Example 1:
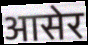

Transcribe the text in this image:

आसेर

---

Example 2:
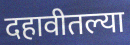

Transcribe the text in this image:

दहावीतल्या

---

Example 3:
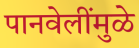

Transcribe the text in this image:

पानवेलींमुळे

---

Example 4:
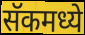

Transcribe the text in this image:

सॅकमध्ये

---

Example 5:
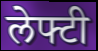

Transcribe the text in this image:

लेफ्टी